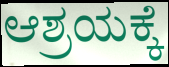
ಆಶ್ರಯಕ್ಕೆ